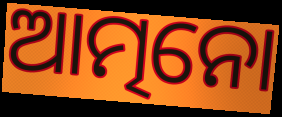
ଆତ୍ମନୋ